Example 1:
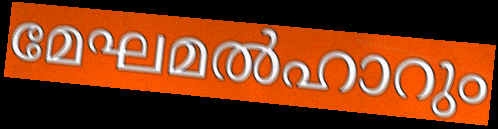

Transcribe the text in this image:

മേഘമൽഹാറും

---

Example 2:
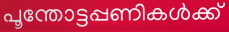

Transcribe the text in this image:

പൂന്തോട്ടപ്പണികൾക്ക്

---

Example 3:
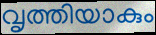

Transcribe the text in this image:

വൃത്തിയാകും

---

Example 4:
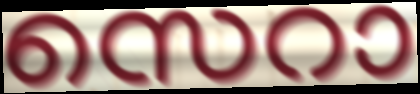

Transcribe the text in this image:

സെറാ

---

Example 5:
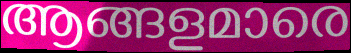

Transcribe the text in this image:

ആങ്ങളമാരെ